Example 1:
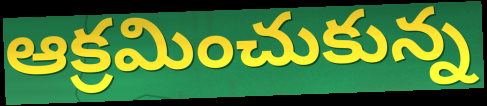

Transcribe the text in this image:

ఆక్రమించుకున్న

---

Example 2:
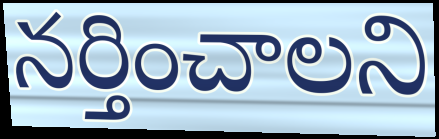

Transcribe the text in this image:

నర్తించాలని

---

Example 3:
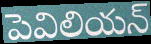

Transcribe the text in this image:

పెవిలియన్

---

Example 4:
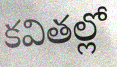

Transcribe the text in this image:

కవితల్లో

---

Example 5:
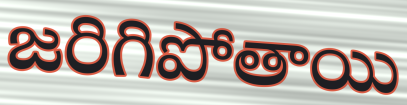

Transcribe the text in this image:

జరిగిపోతాయి